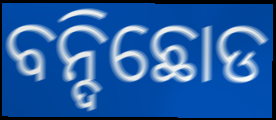
ବନ୍ଦିଛୋଡ